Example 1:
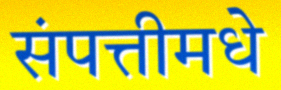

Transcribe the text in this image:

संपत्तीमधे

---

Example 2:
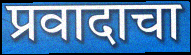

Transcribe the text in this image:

प्रवादाचा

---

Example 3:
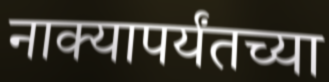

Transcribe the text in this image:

नाक्यापर्यंतच्या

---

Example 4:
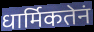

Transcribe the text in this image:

धार्मिकतेनं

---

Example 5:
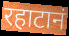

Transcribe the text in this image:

रहाटानं